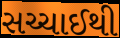
સચ્ચાઈથી